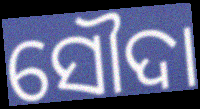
ସୌଦା